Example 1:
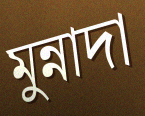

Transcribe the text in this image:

মুন্নাদা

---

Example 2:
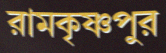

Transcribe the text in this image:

রামকৃষ্ণপুর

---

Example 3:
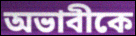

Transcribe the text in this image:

অভাবীকে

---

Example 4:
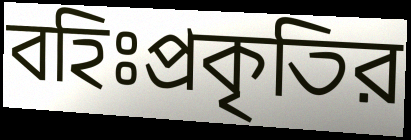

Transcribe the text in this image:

বহিঃপ্রকৃতির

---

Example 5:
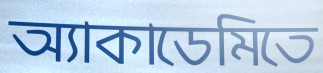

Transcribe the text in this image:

অ্যাকাডেমিতে